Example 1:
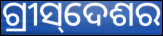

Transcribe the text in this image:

ଗ୍ରୀସ୍‌ଦେଶର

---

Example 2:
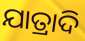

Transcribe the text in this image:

ଯାତ୍ରାଦି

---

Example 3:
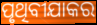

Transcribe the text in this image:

ପୃଥିବୀଯାକର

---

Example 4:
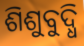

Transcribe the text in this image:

ଶିଶୁବୁଦ୍ଧି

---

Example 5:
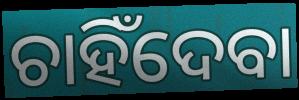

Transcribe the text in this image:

ଚାହିଁଦେବା